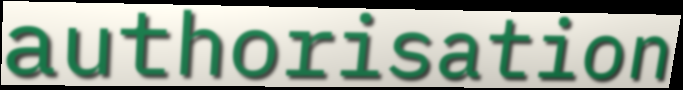
authorisation